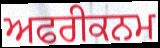
ਅਫਰੀਕਨਮ